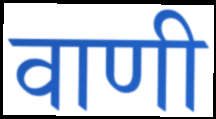
वाणी